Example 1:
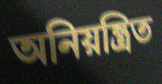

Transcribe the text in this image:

অনিয়ন্ত্রিত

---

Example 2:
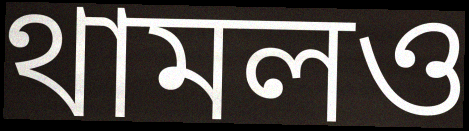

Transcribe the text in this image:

থামলও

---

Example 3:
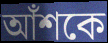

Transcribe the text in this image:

আঁশকে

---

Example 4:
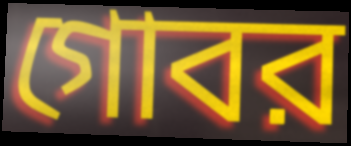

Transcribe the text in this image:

গোবর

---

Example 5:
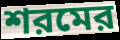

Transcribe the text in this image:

শরমের